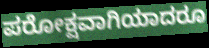
ಪರೋಕ್ಷವಾಗಿಯಾದರೂ